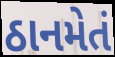
ઠાનમેતં